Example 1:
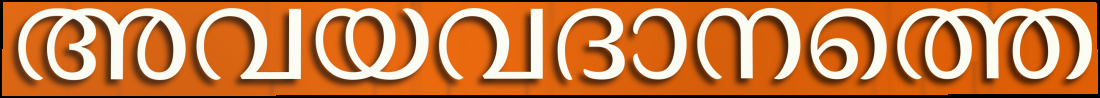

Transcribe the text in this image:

അവയവദാനത്തെ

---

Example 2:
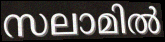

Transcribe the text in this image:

സലാമിൽ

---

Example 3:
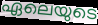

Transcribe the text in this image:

ഏലെയുടെ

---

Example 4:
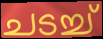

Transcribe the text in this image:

ചടച്ച്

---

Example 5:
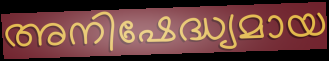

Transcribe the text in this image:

അനിഷേദ്ധ്യമായ